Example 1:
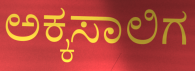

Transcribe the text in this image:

ಅಕ್ಕಸಾಲಿಗ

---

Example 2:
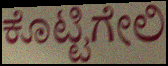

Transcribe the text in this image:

ಕೊಟ್ಟಿಗೇಲಿ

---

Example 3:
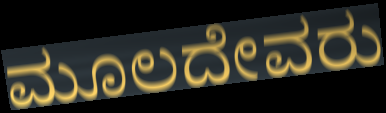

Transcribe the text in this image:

ಮೂಲದೇವರು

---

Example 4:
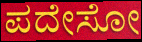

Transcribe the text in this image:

ಪದೇಸೋ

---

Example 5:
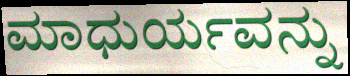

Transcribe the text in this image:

ಮಾಧುರ್ಯವನ್ನು